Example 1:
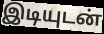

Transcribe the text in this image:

இடியுடன்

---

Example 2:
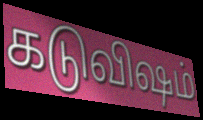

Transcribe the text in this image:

கடுவிஷம்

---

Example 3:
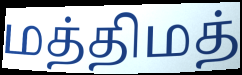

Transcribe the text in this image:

மத்திமத்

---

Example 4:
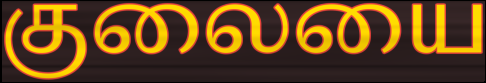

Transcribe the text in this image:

குலையை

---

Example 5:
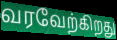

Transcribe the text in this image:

வரவேற்கிறது